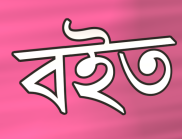
বইত